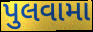
પુલવામા